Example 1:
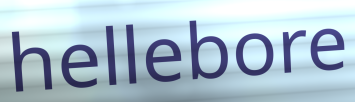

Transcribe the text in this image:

hellebore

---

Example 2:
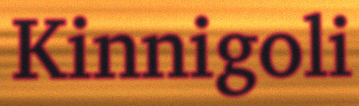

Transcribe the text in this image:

Kinnigoli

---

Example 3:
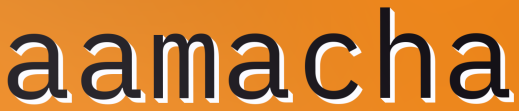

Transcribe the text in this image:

aamacha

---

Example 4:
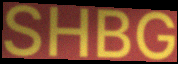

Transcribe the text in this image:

SHBG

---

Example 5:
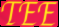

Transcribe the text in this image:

TEE